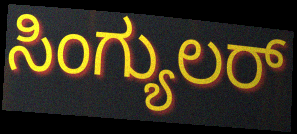
ಸಿಂಗ್ಯುಲರ್